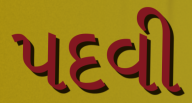
પદવી